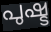
പുഷ്ട